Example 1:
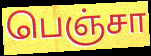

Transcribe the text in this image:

பெஞ்சா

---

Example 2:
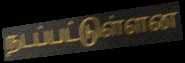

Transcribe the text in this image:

நடப்பட்டுள்ளன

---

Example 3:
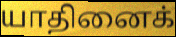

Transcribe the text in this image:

யாதினைக்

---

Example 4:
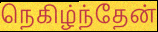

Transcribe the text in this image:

நெகிழ்ந்தேன்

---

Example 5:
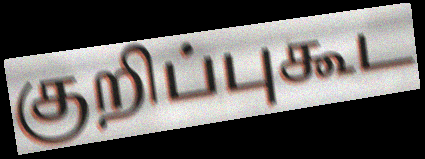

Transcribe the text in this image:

குறிப்புகூட